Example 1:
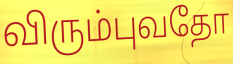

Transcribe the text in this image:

விரும்புவதோ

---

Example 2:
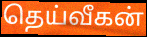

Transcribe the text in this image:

தெய்வீகன்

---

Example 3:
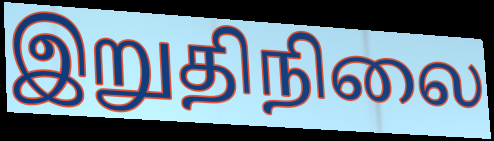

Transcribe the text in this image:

இறுதிநிலை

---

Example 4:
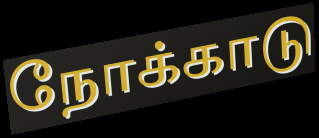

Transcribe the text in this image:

நோக்காடு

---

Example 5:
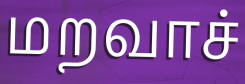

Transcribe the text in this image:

மறவாச்